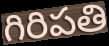
గిరిపతి